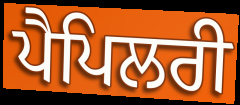
ਪੈਪਿਲਰੀ